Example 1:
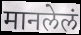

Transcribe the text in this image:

मानलेलं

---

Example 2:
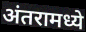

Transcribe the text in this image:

अंतरामध्ये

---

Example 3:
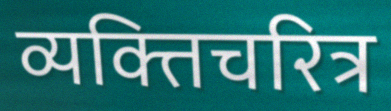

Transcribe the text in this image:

व्यक्तिचरित्र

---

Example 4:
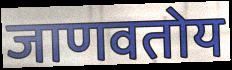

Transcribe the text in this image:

जाणवतोय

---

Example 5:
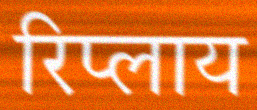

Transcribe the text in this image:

रिप्लाय